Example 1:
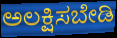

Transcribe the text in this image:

ಅಲಕ್ಷಿಸಬೇಡಿ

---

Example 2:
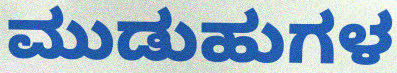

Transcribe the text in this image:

ಮುಡುಹುಗಳ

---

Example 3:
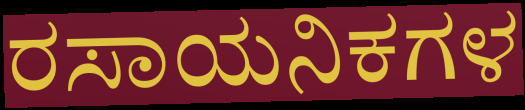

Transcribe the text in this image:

ರಸಾಯನಿಕಗಳ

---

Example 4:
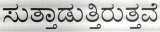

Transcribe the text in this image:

ಸುತ್ತಾಡುತ್ತಿರುತ್ತವೆ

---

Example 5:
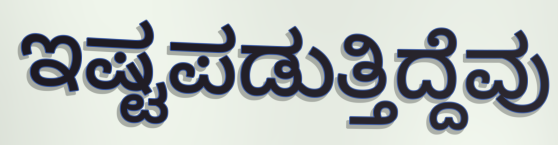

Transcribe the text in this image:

ಇಷ್ಟಪಡುತ್ತಿದ್ದೆವು